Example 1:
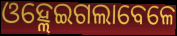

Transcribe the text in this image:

ଓହ୍ଲେଇଗଲାବେଳେ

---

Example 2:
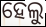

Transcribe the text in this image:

ହେଲୁ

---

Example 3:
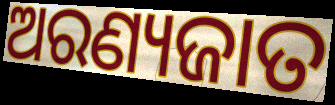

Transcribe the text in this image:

ଅରଣ୍ୟଜାତ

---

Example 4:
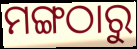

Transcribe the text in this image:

ମଙ୍ଗଠାରୁ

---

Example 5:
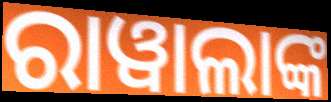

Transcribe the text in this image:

ରାୱାଲାଙ୍କ